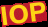
IOP